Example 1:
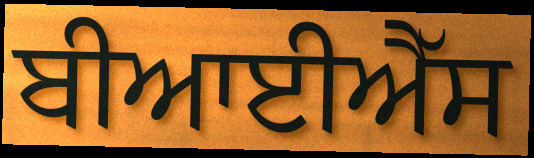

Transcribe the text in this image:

ਬੀਆਈਐੱਸ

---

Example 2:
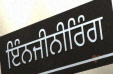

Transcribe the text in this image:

ਇੰਨਜੀਨੀਰਿੰਗ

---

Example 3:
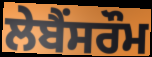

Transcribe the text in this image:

ਲੇਬੈਂਸਰੌਮ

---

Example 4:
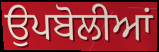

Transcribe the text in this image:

ਉਪਬੋਲੀਆਂ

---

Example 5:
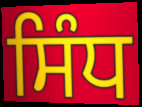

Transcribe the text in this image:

ਸਿੰਧ